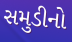
સમુડીનો